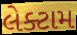
લેક્ટામ